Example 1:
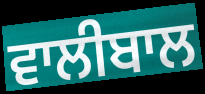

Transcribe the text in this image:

ਵਾਲੀਬਾਲ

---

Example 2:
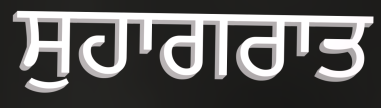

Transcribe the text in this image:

ਸੁਹਾਗਰਾਤ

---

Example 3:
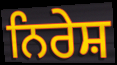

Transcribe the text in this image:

ਨਿਰੇਸ਼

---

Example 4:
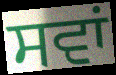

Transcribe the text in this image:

ਸਵਾਂ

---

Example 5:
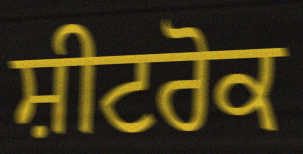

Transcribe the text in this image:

ਸ਼ੀਟਰੋਕ